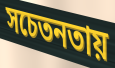
সচেতনতায়